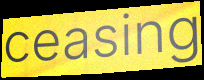
ceasing